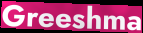
Greeshma